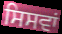
ਸਿਸਵਾਂ